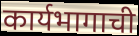
कार्यभागाची